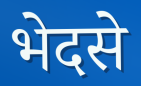
भेदसे